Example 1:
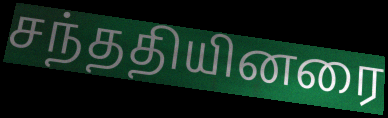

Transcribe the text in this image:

சந்ததியினரை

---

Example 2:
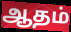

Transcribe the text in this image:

ஆதம்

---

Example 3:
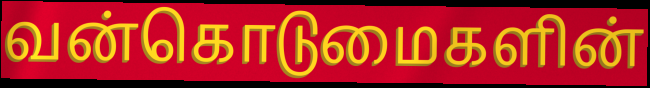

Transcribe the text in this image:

வன்கொடுமைகளின்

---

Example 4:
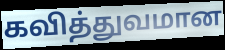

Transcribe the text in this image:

கவித்துவமான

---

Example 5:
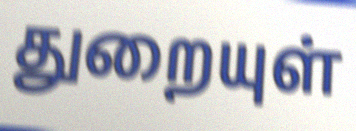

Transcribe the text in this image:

துறையுள்